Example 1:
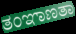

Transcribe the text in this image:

ತಂಞಾಣತಾ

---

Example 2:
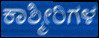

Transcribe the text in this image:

ಕಾಶ್ಮೀರಿಗಳ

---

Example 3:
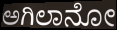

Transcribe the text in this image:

ಅಗಿಲಾನೋ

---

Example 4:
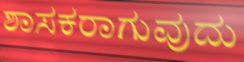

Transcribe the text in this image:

ಶಾಸಕರಾಗುವುದು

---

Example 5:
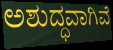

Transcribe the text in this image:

ಅಶುದ್ಧವಾಗಿವೆ